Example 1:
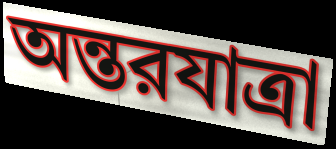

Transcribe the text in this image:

অন্তরযাত্রা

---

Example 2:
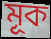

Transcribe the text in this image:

মূক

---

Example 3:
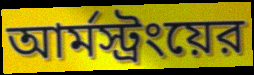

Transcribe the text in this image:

আর্মস্ট্রংয়ের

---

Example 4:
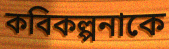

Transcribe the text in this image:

কবিকল্পনাকে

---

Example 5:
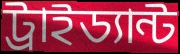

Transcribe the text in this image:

ট্রাইড্যান্ট